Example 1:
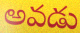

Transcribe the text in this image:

అవడు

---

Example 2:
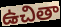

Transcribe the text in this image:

ఉచితా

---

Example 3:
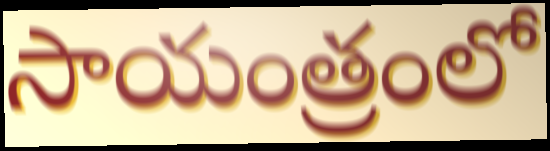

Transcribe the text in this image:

సాయంత్రంలో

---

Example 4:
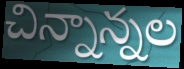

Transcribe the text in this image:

చిన్నాన్నల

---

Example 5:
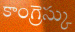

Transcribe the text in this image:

కాంగ్రెస్కు